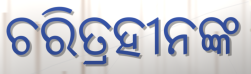
ଚରିତ୍ରହୀନଙ୍କ